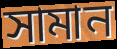
সামান